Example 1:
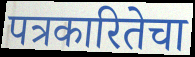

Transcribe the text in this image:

पत्रकारितेचा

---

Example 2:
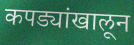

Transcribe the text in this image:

कपड्यांखालून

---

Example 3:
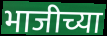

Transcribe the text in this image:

भाजीच्या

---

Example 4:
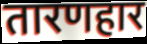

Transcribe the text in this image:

तारणहार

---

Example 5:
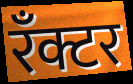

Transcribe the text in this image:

रँक्टर